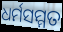
ଧର୍ମସମ୍ମତ